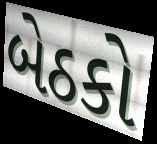
બેઠકો